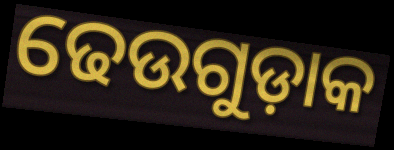
ଢେଉଗୁଡ଼ାକ